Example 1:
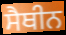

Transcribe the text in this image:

ਸੈਥੀਨ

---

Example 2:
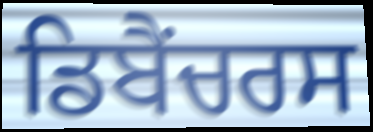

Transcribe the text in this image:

ਡਿਬੈਂਚਰਸ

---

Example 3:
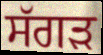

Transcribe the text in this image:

ਸੱਗੜ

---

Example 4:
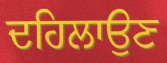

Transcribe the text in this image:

ਦਹਿਲਾਉਣ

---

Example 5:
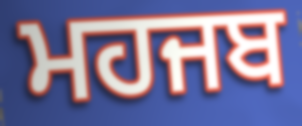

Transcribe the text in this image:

ਮਹਜਬ